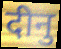
दीनु